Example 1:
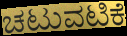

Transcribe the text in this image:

ಚಟುವಟಿಕೆ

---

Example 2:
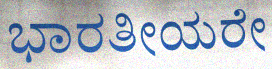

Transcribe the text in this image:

ಭಾರತೀಯರೇ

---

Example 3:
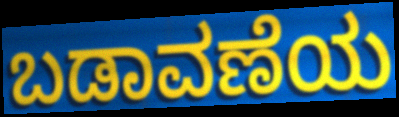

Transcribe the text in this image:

ಬಡಾವಣೆಯ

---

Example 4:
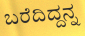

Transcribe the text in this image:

ಬರೆದಿದ್ದನ್ನ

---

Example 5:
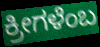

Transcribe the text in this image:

ಕ್ರೀಗಳೆಂಬ